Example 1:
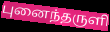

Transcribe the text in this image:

புனைந்தருளி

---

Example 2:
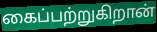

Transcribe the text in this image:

கைப்பற்றுகிறான்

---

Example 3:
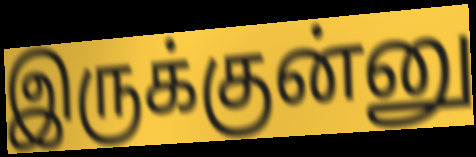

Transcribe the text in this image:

இருக்குன்னு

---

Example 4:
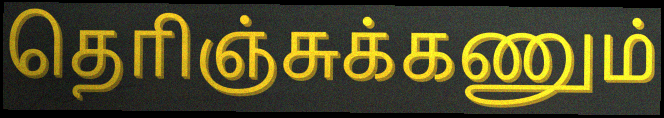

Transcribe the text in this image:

தெரிஞ்சுக்கணும்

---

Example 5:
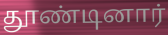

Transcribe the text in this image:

தூண்டினார்